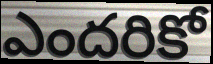
ఎందరికో